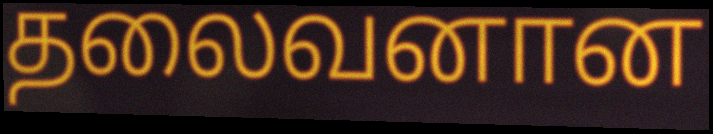
தலைவனான